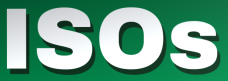
ISOs